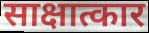
साक्षात्कार